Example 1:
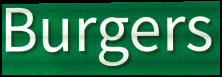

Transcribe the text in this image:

Burgers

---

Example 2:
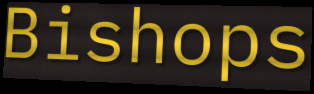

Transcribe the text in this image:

Bishops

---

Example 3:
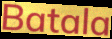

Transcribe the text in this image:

Batala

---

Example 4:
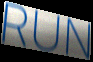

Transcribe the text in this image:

RUN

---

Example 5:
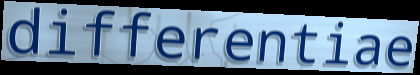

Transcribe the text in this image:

differentiae